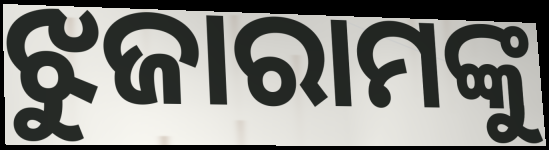
ଝୁଜାରାମଙ୍କୁ